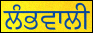
ਲੰਭਵਾਲੀ